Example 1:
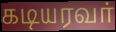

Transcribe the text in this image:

கடியரவர்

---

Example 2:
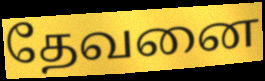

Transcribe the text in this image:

தேவனை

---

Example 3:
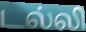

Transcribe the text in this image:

டல்லி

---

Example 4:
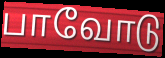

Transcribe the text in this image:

பாவோடு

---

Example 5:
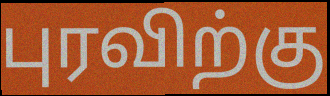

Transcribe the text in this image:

புரவிற்கு